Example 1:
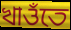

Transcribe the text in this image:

খাওঁতে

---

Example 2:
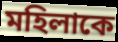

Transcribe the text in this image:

মহিলাকে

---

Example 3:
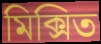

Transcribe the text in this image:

মিক্সিত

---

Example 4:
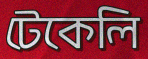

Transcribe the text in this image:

টেকেলি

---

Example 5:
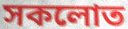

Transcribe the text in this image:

সকলোত